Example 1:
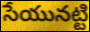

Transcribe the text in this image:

సేయునట్టి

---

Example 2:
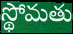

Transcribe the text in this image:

స్థోమతు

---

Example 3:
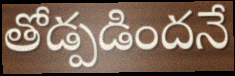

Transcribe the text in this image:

తోడ్పడిందనే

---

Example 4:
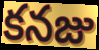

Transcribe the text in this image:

కనజు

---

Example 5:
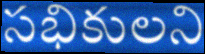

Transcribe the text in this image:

సభికులని